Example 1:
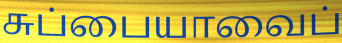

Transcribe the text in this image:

சுப்பையாவைப்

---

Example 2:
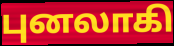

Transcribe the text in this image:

புனலாகி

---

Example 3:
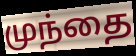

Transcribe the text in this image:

முந்தை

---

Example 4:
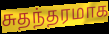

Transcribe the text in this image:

சுதந்தரமாக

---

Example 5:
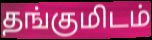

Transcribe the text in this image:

தங்குமிடம்